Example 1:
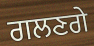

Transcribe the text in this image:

ਗਲਣਗੇ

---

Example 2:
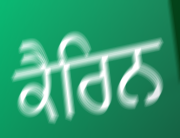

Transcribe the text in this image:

ਕੈਰਿਨ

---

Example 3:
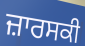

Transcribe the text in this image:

ਜ਼ਾਰਸਕੀ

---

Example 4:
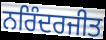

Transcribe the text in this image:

ਨਰਿੰਦਰਜੀਤ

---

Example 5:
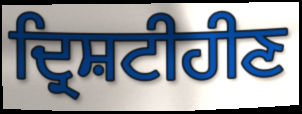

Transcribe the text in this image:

ਦ੍ਰਿਸ਼ਟੀਹੀਣ